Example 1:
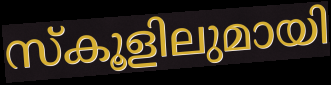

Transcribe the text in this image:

സ്കൂളിലുമായി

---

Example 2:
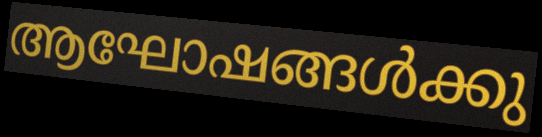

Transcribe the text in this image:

ആഘോഷങ്ങൾക്കു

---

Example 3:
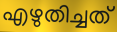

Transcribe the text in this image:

എഴുതിച്ചത്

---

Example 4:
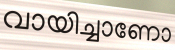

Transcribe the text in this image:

വായിച്ചാണോ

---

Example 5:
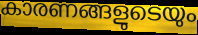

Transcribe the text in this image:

കാരണങ്ങളുടെയും